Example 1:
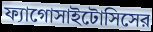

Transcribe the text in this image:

ফ্যাগোসাইটোসিসের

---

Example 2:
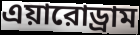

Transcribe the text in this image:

এয়ারোড্রাম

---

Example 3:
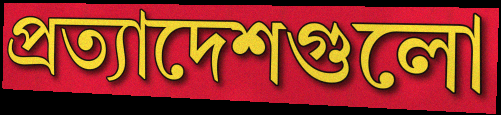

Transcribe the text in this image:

প্রত্যাদেশগুলো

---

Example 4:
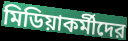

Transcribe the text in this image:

মিডিয়াকর্মীদের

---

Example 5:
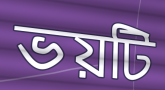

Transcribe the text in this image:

ভয়টি